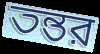
তন্তর